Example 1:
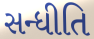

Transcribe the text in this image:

સન્ધીતિ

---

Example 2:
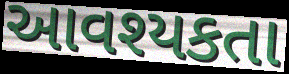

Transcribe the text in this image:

આવશ્યકતા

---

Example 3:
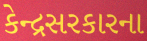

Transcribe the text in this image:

કેન્દ્રસરકારના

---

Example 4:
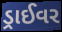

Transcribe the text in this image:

ડ્રાઈવર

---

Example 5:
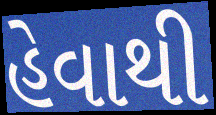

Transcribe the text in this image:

હેવાથી